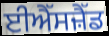
ਈਐੱਸਜ਼ੈੱਡ